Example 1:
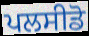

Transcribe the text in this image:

ਪਲਸੀਡੋ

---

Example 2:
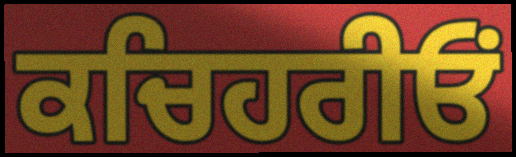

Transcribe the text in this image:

ਕਚਿਹਰੀਓਂ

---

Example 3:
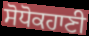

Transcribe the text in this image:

ਸੋਧੋਕਹਾਣੀ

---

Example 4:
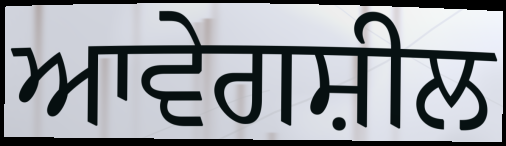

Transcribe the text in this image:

ਆਵੇਗਸ਼ੀਲ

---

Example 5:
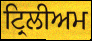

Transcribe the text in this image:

ਟ੍ਰਿਲੀਅਮ